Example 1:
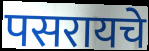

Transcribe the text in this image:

पसरायचे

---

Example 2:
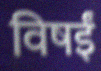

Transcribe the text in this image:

विषईं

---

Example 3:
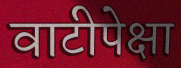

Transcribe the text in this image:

वाटीपेक्षा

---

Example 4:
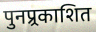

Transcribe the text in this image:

पुनप्र्रकाशित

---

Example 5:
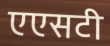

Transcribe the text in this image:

एएसटी